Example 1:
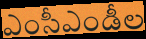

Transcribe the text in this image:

ఎంసీఎండీల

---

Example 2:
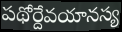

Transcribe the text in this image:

పథోర్దేవయానస్య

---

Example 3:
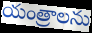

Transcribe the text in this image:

యంత్రాలను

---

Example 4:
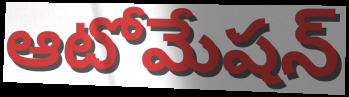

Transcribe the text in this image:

ఆటోమేషన్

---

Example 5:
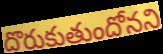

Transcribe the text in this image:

దొరుకుతుందోనని